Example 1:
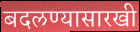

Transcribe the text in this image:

बदलण्यासारखी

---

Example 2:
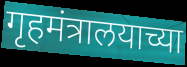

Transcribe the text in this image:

गृहमंत्रालयाच्या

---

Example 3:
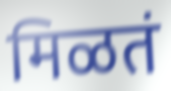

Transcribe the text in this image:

मिळतं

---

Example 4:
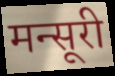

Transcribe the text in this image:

मन्सूरी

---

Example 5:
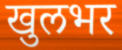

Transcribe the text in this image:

खुलभर